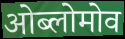
ओब्लोमोव